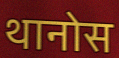
थानोस